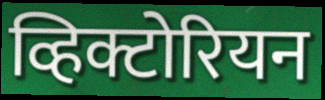
व्हिक्टोरियन